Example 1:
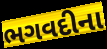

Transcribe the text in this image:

ભગવદીના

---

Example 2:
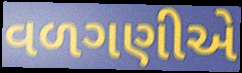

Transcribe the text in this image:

વળગણીએ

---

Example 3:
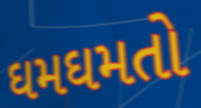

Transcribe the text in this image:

ઘમઘમતો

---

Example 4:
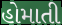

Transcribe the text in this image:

હોમાતી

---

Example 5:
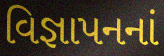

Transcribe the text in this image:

વિજ્ઞાપનનાં